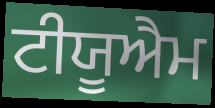
ਟੀਯੂਐਮ